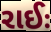
રાઈઃ